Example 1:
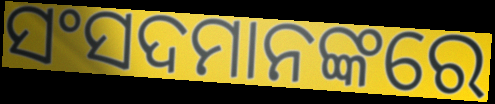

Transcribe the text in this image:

ସଂସଦମାନଙ୍କରେ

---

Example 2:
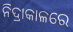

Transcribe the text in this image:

ନିଦ୍ରାକାଳରେ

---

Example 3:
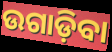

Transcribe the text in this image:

ଉଗାଡ଼ିବା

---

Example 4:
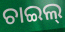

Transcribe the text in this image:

ଚାଇଲ୍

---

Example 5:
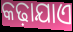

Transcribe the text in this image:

କଢ଼ାଯାଏ